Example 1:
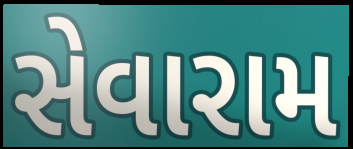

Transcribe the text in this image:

સેવારામ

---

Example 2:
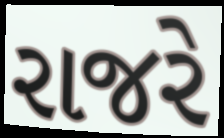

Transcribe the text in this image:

રાજરે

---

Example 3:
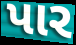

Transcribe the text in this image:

પાર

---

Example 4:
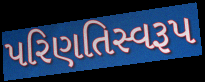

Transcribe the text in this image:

પરિણતિસ્વરૂપ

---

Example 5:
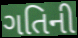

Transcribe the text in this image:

ગતિની